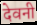
देवनी